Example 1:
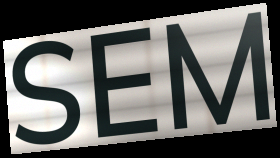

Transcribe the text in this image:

SEM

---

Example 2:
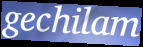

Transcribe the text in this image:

gechilam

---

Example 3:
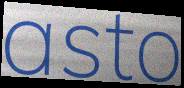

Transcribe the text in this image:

asto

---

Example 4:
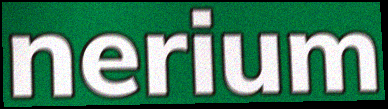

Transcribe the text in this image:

nerium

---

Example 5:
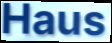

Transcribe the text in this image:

Haus